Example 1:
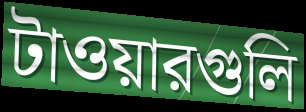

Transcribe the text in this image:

টাওয়ারগুলি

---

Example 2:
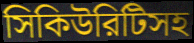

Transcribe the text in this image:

সিকিউরিটিসহ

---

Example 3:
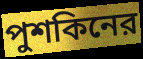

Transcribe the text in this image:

পুশকিনের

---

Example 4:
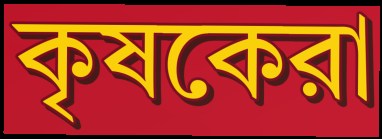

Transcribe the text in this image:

কৃষকেরা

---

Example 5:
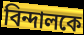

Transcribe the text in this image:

বিন্দালকে